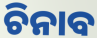
ଚିନାବ